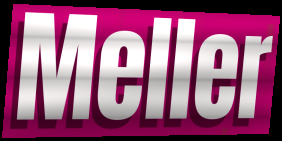
Meller